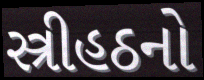
સ્ત્રીહઠનો